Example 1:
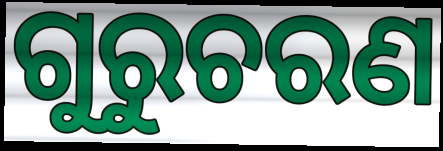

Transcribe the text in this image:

ଗୁରୁଚରଣ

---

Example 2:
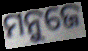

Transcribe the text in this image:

ମନୁଜେ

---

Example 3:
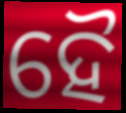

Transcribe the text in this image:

ହୈ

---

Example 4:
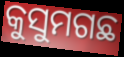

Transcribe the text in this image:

କୁସୁମଗଛ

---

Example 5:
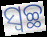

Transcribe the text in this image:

ସ୍ୱଚ୍ଛ